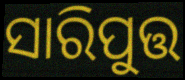
ସାରିପୁତ୍ତ